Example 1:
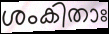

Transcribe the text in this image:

ശംകിതാഃ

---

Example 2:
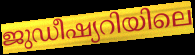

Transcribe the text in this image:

ജുഡീഷ്യറിയിലെ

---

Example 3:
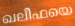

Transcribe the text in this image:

ഖലീഫയെ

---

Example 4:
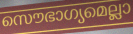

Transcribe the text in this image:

സൌഭാഗ്യമെല്ലാ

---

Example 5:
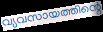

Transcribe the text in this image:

വ്യവസായത്തിന്റെ